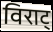
विराट्